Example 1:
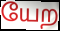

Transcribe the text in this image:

யேற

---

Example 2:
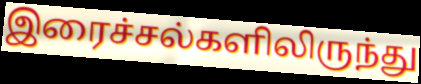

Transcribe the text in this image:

இரைச்சல்களிலிருந்து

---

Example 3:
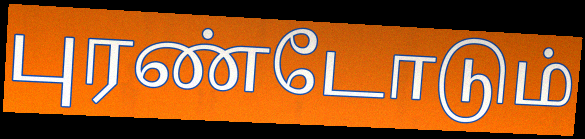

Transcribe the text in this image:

புரண்டோடும்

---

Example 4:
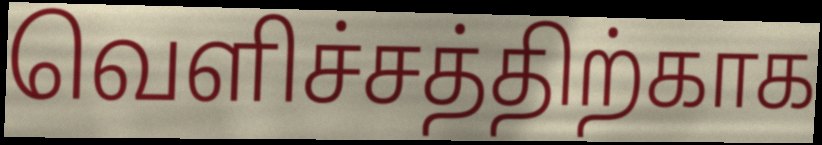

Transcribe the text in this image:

வெளிச்சத்திற்காக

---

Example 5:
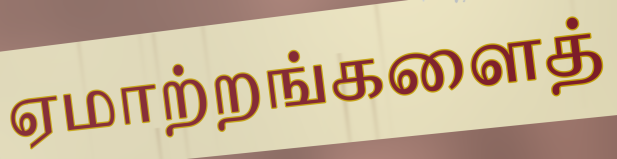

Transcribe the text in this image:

ஏமாற்றங்களைத்